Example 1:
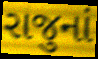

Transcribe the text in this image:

રાજુનાં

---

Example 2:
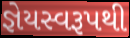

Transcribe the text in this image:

જ્ઞેયસ્વરૂપથી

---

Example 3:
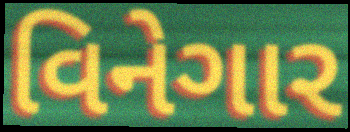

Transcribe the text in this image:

વિનેગાર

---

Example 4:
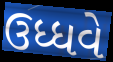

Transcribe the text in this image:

ઉધ્ધવે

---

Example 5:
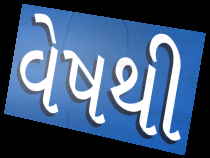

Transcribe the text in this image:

વેષથી